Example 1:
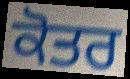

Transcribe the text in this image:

ਕੋਤਰ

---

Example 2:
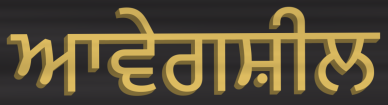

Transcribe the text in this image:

ਆਵੇਗਸ਼ੀਲ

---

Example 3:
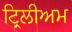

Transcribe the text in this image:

ਟ੍ਰਿਲੀਅਮ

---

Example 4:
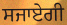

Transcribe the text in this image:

ਸਜਾਏਗੀ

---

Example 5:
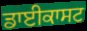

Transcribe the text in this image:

ਡਾਈਕਾਸਟ